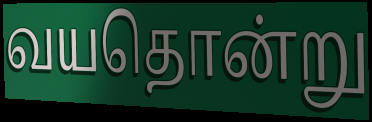
வயதொன்று